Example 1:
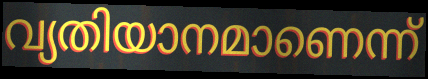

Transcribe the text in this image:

വ്യതിയാനമാണെന്ന്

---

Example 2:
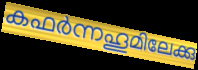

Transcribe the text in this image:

കഫർന്നഹൂമിലേക്കു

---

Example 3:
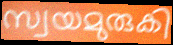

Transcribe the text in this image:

സ്വയമുരുകി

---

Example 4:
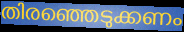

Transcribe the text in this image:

തിരഞ്ഞെടുക്കണം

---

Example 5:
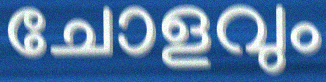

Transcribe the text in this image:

ചോളവും